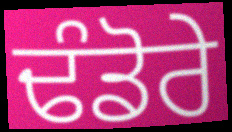
ਢੰਡੋਰੇ